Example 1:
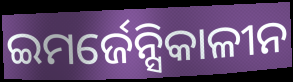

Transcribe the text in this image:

ଇମର୍ଜେନ୍ସିକାଳୀନ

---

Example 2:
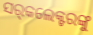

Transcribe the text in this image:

ସର୍‌କଲେକ୍ଟରଙ୍କୁ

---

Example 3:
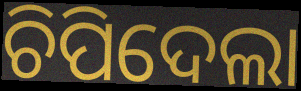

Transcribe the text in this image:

ଚିପିଦେଲା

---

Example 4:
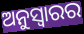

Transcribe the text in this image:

ଅନୁସ୍ଵାରର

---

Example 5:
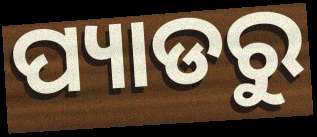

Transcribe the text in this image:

ପ୍ୟାଡରୁ